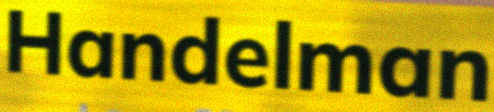
Handelman